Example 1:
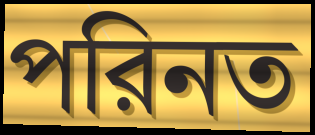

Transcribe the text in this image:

পরিনত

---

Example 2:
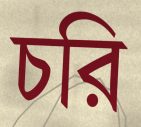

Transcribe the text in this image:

চরি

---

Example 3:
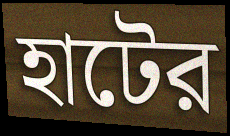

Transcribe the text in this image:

হাটের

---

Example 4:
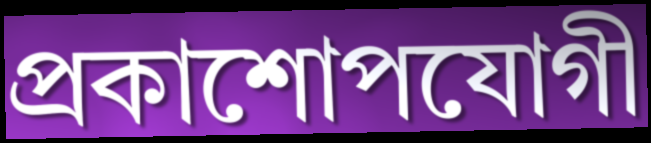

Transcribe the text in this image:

প্রকাশোপযোগী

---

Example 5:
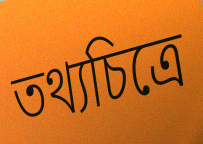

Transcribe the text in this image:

তথ্যচিত্রে